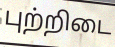
புற்றிடை